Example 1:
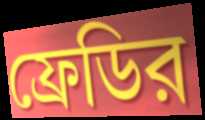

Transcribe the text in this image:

ফ্রেডির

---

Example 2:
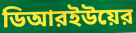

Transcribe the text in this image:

ডিআরইউয়ের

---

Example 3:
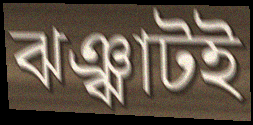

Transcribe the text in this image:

ঝঞ্ঝাটই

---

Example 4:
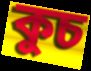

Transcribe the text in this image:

কুচ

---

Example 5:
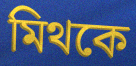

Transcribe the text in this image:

মিথকে